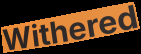
Withered